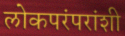
लोकपरंपरांशी